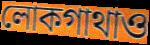
লোকগাথাও